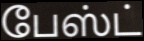
பேஸ்ட்